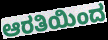
ಆರತಿಯಿಂದ